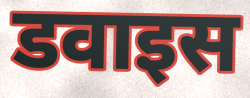
डवाइस